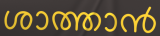
ശാത്താൻ